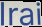
Irai